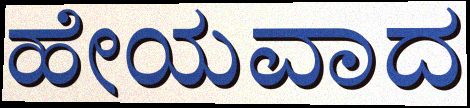
ಹೇಯವಾದ